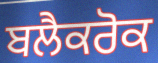
ਬਲੈਕਰੋਕ